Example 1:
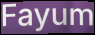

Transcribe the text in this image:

Fayum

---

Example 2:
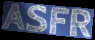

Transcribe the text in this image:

ASFR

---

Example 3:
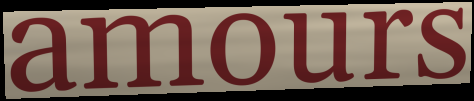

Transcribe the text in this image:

amours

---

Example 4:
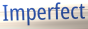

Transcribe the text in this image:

Imperfect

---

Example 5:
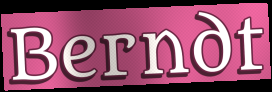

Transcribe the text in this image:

Berndt